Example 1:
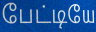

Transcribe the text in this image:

பேட்டியே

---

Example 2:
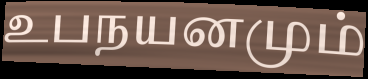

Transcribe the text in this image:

உபநயனமும்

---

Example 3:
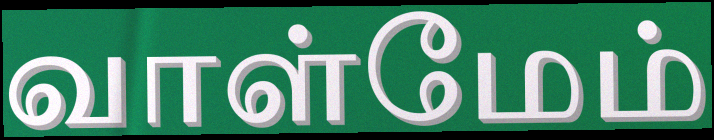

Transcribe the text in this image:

வாள்மேம்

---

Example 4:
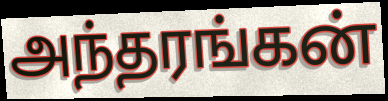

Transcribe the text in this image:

அந்தரங்கன்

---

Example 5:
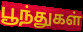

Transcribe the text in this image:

பூந்துகள்